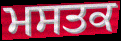
ਮਸਤਕ